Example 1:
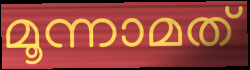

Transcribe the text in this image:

മൂന്നാമത്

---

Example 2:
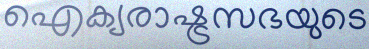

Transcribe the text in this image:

ഐക്യരാഷ്ട്രസഭയുടെ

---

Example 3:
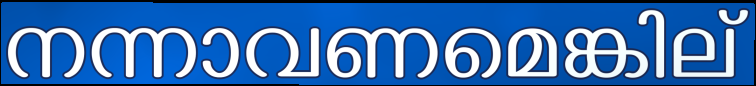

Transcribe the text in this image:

നന്നാവണമെങ്കില്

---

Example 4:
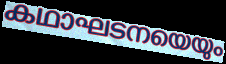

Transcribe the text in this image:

കഥാഘടനയെയും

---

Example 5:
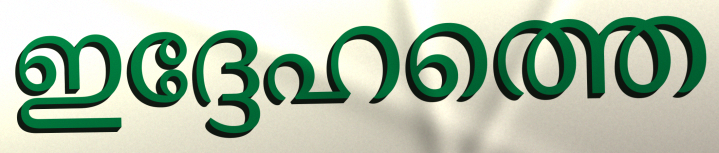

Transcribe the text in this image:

ഇദ്ദേഹത്തെ